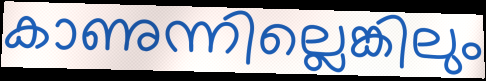
കാണുന്നില്ലെങ്കിലും